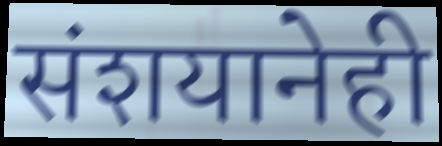
संशयानेही